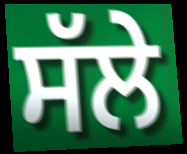
ਸੱਲੇ